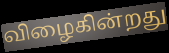
விழைகின்றது